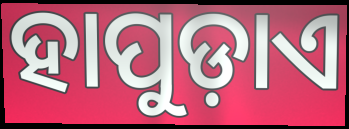
ହାପୁଡ଼ାଏ